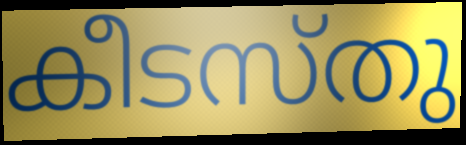
കീടസ്തു